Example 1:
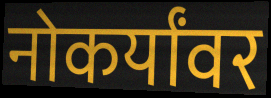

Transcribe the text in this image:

नोकर्यांवर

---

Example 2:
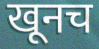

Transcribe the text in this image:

खूनच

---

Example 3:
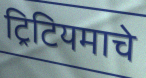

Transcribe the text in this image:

ट्रिटियमाचे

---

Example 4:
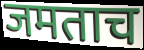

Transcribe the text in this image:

जमताच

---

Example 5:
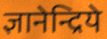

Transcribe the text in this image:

ज्ञानेन्द्रिये